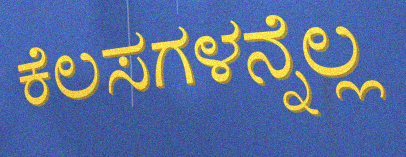
ಕೆಲಸಗಳನ್ನೆಲ್ಲ